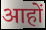
आहों